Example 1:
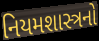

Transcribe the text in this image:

નિયમશાસ્ત્રનો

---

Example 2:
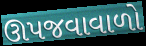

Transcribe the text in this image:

ઊપજવાવાળો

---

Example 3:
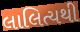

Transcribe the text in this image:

લાલિત્યથી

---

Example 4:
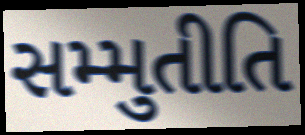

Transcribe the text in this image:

સમ્મુતીતિ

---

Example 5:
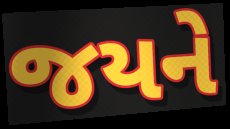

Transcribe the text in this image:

જયને